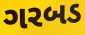
ગરબડ